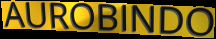
AUROBINDO